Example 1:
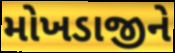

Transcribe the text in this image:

મોખડાજીને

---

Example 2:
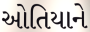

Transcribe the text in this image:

ઓતિયાને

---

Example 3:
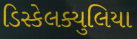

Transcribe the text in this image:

ડિસ્કેલક્યુલિયા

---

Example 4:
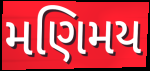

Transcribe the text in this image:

મણિમય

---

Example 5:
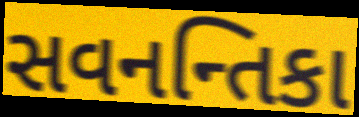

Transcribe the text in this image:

સવનન્તિકા